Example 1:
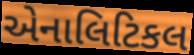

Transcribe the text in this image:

એનાલિટિકલ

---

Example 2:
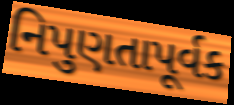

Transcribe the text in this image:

નિપુણતાપૂર્વક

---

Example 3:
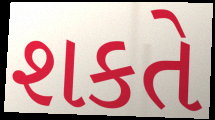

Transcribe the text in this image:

શકતે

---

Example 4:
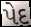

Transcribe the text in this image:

પેદ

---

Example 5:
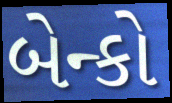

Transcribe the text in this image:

બેન્કો